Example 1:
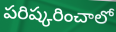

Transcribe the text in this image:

పరిష్కరించాలో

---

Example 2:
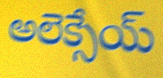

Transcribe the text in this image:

అలెక్సేయ్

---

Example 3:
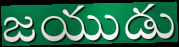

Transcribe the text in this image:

జయుడు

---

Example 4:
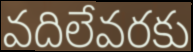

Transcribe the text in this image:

వదిలేవరకు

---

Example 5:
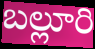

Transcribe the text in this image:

బల్లూరి